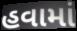
હવામાં